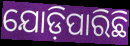
ଯୋଡ଼ିପାରିଛି